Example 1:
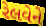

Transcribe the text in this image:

રેલવેને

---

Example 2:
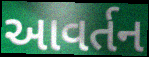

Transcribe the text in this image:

આવર્તન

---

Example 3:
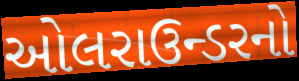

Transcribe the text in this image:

ઓલરાઉન્ડરનો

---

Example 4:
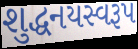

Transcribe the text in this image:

શુદ્ધનયસ્વરૂપ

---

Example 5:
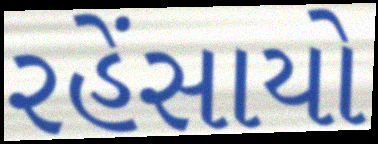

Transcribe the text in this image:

રહેંસાયો